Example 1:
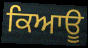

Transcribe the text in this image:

ਕਿਆਊ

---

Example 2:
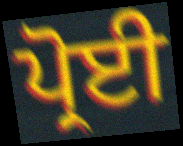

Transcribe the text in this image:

ਪ੍ਰੋਈ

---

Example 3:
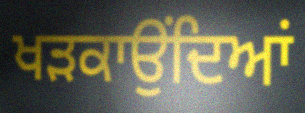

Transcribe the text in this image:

ਖੜਕਾਉਂਦਿਆਂ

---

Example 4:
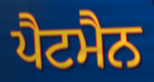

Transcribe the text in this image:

ਪੈਟਮੈਨ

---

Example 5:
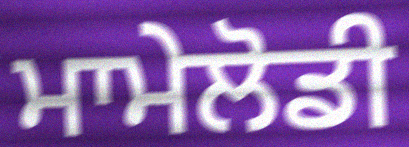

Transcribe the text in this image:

ਮਾਮੇਲੋਡੀ